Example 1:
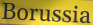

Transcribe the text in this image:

Borussia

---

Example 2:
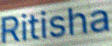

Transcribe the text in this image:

Ritisha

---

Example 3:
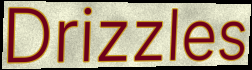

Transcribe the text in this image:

Drizzles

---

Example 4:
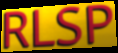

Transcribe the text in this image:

RLSP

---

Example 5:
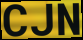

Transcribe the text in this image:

CJN